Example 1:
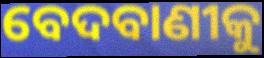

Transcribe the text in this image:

ବେଦବାଣୀକୁ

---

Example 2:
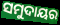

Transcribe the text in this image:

ସମୁଦାୟର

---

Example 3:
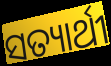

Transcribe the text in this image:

ସତ୍ୟାର୍ଥୀ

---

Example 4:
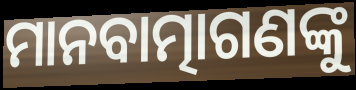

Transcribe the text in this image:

ମାନବାତ୍ମାଗଣଙ୍କୁ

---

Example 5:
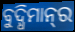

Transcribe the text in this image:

ବୁଦ୍ଧିମାନ୍‍ର